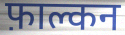
फ़ाल्कन